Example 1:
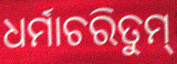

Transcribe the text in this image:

ଧର୍ମାଚରିତୁମ୍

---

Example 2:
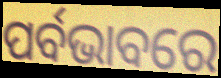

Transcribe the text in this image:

ପର୍ବଭାବରେ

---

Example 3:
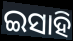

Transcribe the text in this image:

ଇସାହି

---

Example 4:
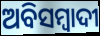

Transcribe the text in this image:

ଅବିସମ୍ବାଦୀ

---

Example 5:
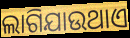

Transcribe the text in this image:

ଲାଗିଯାଉଥାଏ